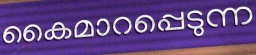
കൈമാറപ്പെടുന്ന